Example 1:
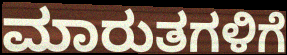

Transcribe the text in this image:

ಮಾರುತಗಳಿಗೆ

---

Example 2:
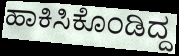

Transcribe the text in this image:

ಹಾಕಿಸಿಕೊಂಡಿದ್ದ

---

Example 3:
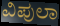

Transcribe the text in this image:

ವಿಪುಲಾ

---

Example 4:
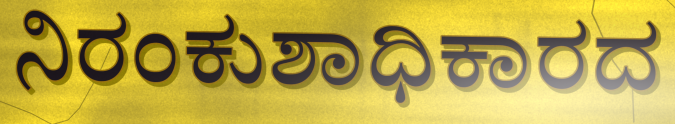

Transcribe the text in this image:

ನಿರಂಕುಶಾಧಿಕಾರದ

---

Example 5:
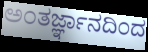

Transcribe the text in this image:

ಅಂತರ್ಜ್ಞಾನದಿಂದ